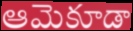
ఆమెకూడా